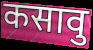
कसावु